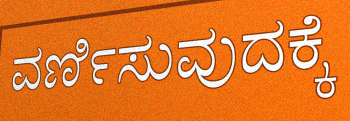
ವರ್ಣಿಸುವುದಕ್ಕೆ